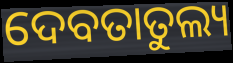
ଦେବତାତୁଲ୍ୟ